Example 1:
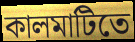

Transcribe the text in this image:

কালমাটিতে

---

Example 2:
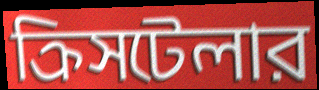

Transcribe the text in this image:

ক্রিসটেলার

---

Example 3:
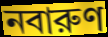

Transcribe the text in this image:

নবারুণ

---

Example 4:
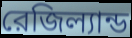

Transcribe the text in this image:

রেজিল্যান্ড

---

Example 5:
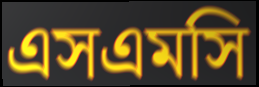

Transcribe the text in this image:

এসএমসি